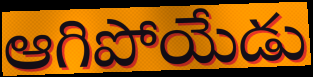
ఆగిపోయేడు